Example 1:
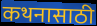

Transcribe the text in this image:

कथनासाठी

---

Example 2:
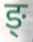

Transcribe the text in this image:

ङ्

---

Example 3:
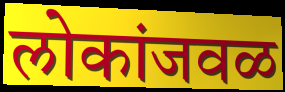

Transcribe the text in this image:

लोकांजवळ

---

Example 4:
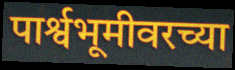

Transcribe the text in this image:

पार्श्वभूमीवरच्या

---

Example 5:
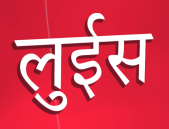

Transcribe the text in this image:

लुईस